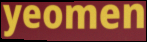
yeomen